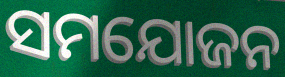
ସମଯୋଜନ